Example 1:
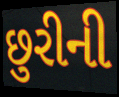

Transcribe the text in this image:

છુરીની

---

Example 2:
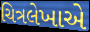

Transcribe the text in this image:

ચિત્રલેખાએ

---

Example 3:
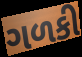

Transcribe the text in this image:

ગળકી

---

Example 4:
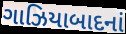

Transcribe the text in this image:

ગાઝિયાબાદનાં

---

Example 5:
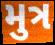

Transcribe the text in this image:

મુત્ર